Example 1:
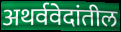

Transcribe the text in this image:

अथर्ववेदांतील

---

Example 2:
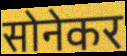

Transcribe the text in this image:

सोनेकर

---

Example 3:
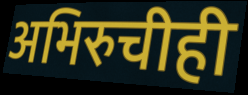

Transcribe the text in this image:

अभिरुचीही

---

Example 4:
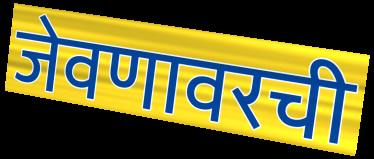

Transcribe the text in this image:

जेवणावरची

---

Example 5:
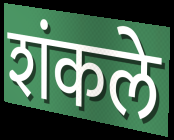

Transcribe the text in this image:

शंकले